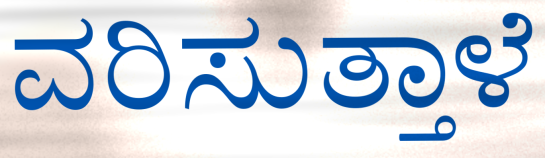
ವರಿಸುತ್ತಾಳೆ